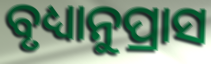
ବୃଧ୍ୟାନୁପ୍ରାସ